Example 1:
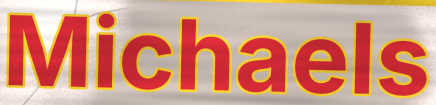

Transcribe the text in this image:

Michaels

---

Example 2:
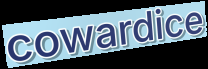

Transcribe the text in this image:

cowardice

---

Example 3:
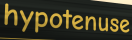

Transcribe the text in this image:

hypotenuse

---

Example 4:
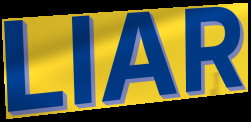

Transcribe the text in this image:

LIAR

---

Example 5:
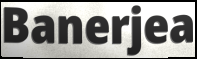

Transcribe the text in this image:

Banerjea